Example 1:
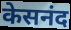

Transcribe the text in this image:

केसनंद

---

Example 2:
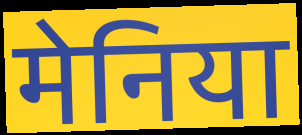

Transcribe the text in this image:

मेनिया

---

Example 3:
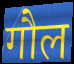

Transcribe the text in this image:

गौल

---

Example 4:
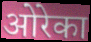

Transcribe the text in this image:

ओरेका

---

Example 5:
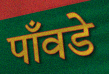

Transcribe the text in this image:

पाँवडे